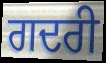
ਗਦਰੀ